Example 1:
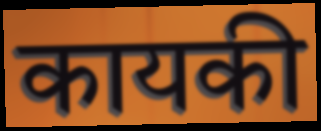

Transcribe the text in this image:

कायकी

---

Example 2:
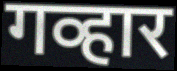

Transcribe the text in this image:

गव्हार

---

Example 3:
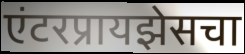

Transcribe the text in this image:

एंटरप्रायझेसचा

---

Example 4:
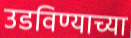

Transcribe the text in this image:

उडविण्याच्या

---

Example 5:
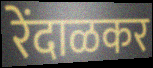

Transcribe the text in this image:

रेंदाळकर